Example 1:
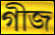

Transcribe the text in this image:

গীজ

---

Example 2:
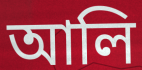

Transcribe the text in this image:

আলি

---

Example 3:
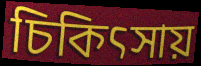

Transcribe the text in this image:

চিকিৎসায়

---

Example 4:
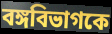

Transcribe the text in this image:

বঙ্গবিভাগকে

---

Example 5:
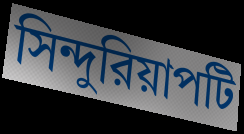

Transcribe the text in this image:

সিন্দুরিয়াপটি